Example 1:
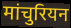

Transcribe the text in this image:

मांचुरियन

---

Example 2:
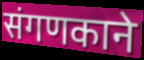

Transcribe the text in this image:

संगणकाने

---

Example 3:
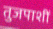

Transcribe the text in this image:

तुजपाशीं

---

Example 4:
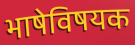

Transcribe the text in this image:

भाषेविषयक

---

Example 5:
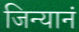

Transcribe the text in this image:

जिन्यानं